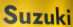
Suzuki